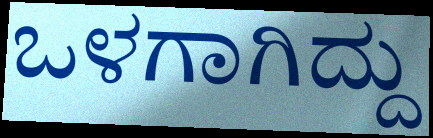
ಒಳಗಾಗಿದ್ದು